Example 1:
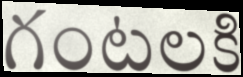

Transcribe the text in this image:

గంటలకి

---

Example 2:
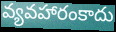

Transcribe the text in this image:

వ్యవహారంకాదు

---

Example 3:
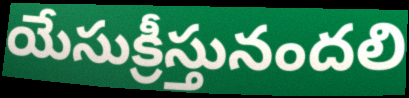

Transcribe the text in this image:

యేసుక్రీస్తునందలి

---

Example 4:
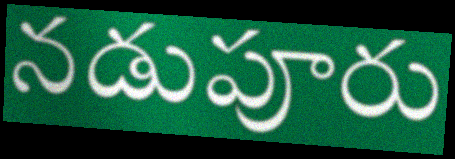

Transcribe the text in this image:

నడుపూరు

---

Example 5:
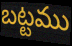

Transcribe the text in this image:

బట్టము